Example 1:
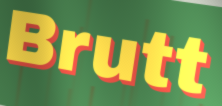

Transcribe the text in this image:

Brutt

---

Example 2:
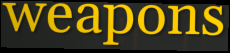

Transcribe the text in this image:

weapons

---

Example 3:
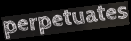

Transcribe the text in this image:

perpetuates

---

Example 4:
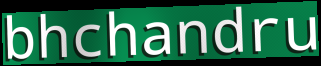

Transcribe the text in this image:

bhchandru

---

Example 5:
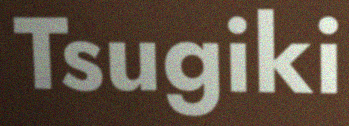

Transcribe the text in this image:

Tsugiki